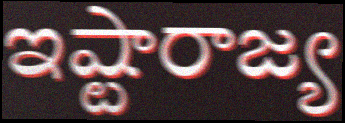
ఇష్టారాజ్య